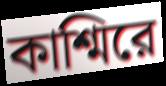
কাশ্মিরে